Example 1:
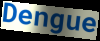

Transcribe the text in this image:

Dengue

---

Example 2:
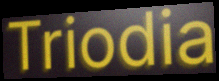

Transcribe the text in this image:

Triodia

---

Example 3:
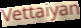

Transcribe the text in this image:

Vettaiyan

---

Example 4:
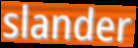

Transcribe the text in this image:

slander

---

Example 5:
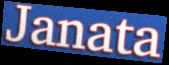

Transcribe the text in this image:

Janata